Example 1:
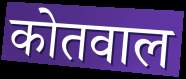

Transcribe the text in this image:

कोतवाल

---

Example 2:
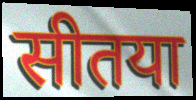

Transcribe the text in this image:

सीतया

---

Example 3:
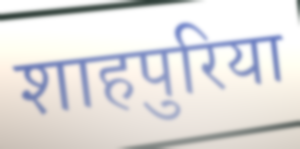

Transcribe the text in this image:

शाहपुरिया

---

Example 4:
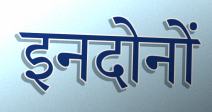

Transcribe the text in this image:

इनदोनों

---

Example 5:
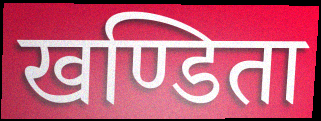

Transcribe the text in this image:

खण्डिता